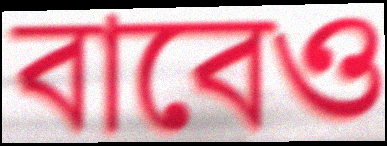
বাবেও